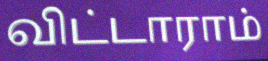
விட்டாராம்